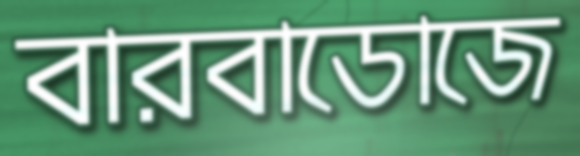
বারবাডোজে